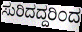
ಸುರಿದದ್ದರಿಂದ